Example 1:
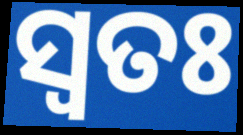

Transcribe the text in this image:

ସ୍ଵତଃ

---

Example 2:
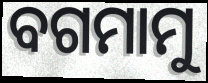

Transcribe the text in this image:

ବଗମାମୁ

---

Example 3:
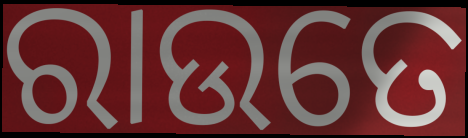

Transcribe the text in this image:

ରାଉତେ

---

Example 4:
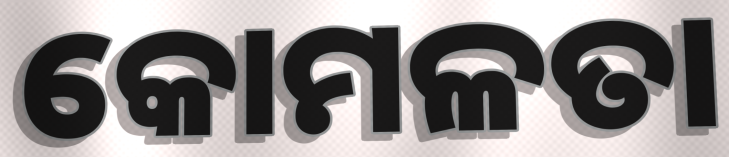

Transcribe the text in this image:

କୋମଳତା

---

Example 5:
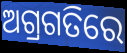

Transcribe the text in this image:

ଅଗ୍ରଗତିରେ